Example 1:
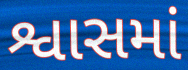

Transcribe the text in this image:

શ્વાસમાં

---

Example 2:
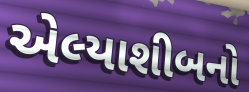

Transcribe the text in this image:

એલ્યાશીબનો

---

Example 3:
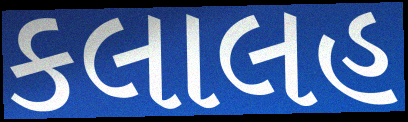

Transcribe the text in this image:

કલાલહ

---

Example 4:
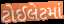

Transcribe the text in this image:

ટોઈલેટમાં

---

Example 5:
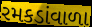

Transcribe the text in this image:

રમકડાંવાળા